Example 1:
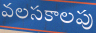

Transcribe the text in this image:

వలసకాలపు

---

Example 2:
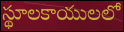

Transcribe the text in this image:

స్థూలకాయులలో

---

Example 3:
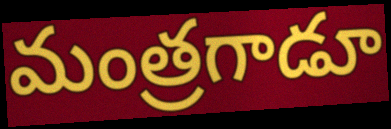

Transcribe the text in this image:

మంత్రగాడూ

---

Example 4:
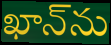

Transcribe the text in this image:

ఖాన్‌ను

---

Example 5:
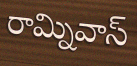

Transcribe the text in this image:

రామ్నివాస్